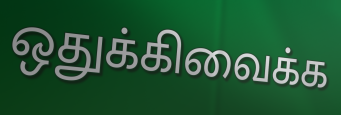
ஒதுக்கிவைக்க